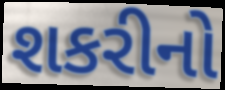
શકરીનો